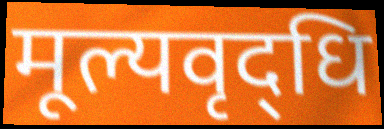
मूल्यवृद्धि